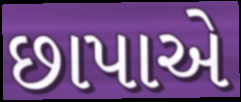
છાપાએ